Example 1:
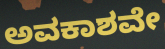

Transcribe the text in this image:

ಅವಕಾಶವೇ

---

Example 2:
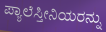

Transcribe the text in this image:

ಪ್ಯಾಲೆಸ್ತೀನಿಯರನ್ನು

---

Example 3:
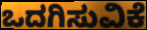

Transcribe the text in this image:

ಒದಗಿಸುವಿಕೆ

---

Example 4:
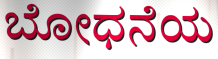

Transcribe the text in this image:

ಬೋಧನೆಯ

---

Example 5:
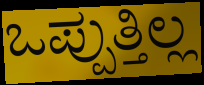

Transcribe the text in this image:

ಒಪ್ಪುತ್ತಿಲ್ಲ